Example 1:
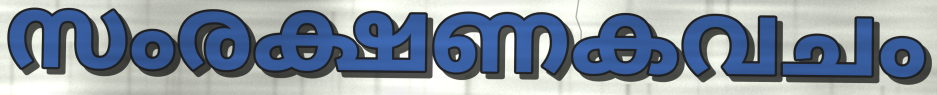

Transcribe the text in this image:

സംരക്ഷണകവചം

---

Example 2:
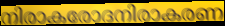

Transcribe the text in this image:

നിരാകരോദനിരാകരണ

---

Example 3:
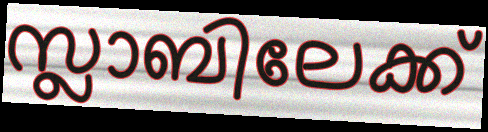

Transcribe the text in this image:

സ്ലാബിലേക്ക്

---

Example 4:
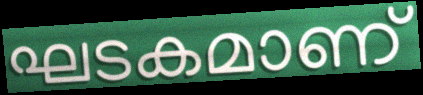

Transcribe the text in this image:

ഘടകമാണ്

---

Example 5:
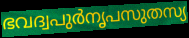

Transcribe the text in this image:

ഭവദ്വപുർനൃപസുതസ്യ